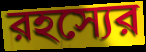
রহস্যের